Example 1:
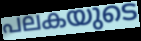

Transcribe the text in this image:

പലകയുടെ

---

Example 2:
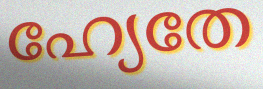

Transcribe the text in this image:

ഹ്യേതേ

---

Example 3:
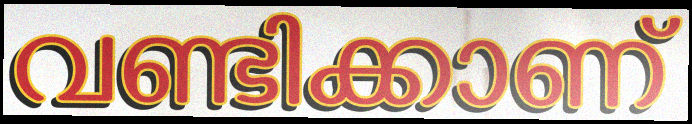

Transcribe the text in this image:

വണ്ടിക്കാണ്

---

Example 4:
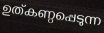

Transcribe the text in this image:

ഉത്കണ്ഠപ്പെടുന്ന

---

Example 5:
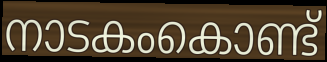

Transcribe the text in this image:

നാടകംകൊണ്ട്